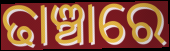
ଢାଞ୍ଚାରେ